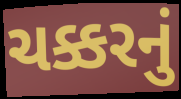
ચક્કરનું